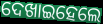
ଦେଖାଇହେଲେ